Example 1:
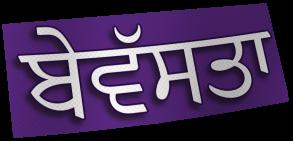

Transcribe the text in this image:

ਬੇਵੱਸਤਾ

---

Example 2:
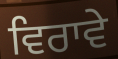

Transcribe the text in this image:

ਵਿਰਾਵੇ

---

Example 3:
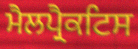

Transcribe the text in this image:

ਮੈਲਪ੍ਰੈਕਟਿਸ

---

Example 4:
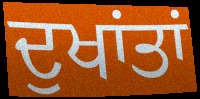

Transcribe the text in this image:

ਦੁਖਾਂਤਾਂ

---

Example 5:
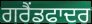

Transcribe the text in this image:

ਗਰੈਂਡਫਾਦਰ